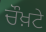
ਚੌਖ਼ਟੇ